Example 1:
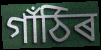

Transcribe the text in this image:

গাঁঠিৰ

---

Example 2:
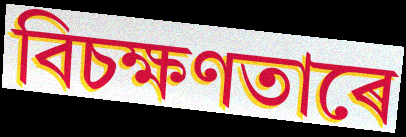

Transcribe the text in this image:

বিচক্ষণতাৰে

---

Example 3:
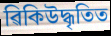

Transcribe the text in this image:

ৱিকিউদ্ধৃতিত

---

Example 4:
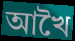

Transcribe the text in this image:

আখৈ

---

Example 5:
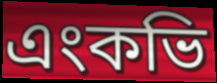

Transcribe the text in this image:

এংকভি